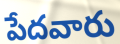
పేదవారు